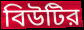
বিউটির